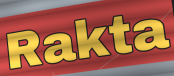
Rakta